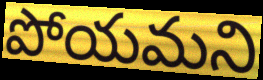
పోయమని